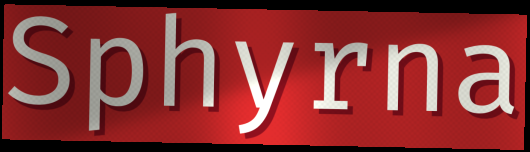
Sphyrna